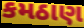
કમઠાણ